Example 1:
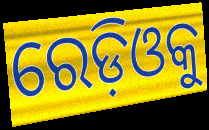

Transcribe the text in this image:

ରେଡ଼ିଓକୁ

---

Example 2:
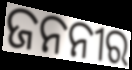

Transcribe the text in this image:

ଜନନୀର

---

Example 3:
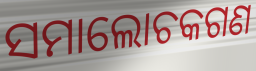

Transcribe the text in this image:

ସମାଲୋଚକଗଣ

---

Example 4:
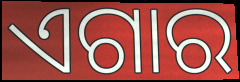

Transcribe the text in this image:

ଏଗାର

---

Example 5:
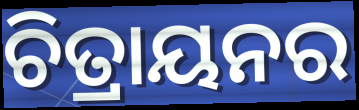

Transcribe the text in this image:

ଚିତ୍ରାୟନର